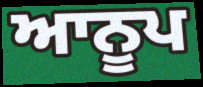
ਆਨੂਪ